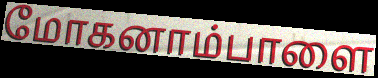
மோகனாம்பாளை